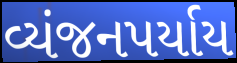
વ્યંજનપર્યાય